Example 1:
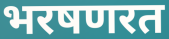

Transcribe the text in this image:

भरषणरत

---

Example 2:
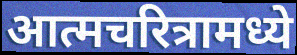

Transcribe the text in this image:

आत्मचरित्रामध्ये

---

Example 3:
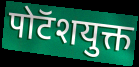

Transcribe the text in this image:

पोटॅशयुक्त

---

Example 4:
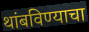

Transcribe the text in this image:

थांबविण्याचा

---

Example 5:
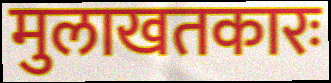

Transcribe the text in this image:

मुलाखतकारः